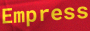
Empress